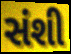
સંશી